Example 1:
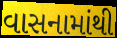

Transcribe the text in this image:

વાસનામાંથી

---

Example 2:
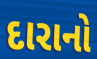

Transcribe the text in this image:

દારાનો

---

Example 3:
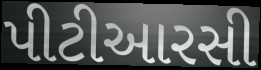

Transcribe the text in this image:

પીટીઆરસી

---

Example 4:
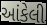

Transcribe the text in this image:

આંકેલી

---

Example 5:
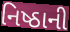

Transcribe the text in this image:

નિષ્ઠાની